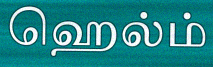
ஹெல்ம்